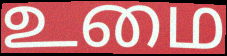
உமை